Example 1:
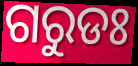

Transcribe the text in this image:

ଗରୁଡଃ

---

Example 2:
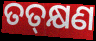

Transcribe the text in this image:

ତତ୍‌କ୍ଷଣ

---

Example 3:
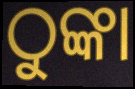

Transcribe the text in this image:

ଠୁଙ୍କା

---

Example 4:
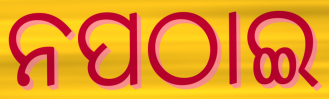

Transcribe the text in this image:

ନପଠାଇ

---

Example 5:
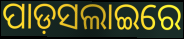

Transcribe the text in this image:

ପାଡ଼ସଲାଇରେ